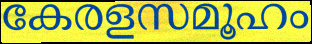
കേരളസമൂഹം